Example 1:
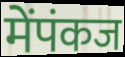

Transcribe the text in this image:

मेंपंकज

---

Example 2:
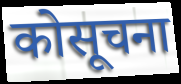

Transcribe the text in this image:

कोसूचना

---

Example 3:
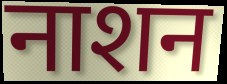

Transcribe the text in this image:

नाशन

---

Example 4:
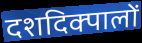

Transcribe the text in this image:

दशदिक्पालों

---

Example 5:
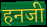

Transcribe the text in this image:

हनजी